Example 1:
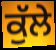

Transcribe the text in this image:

ਕੁੱਲੇ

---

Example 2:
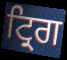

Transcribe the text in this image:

ਟ੍ਰਿਗ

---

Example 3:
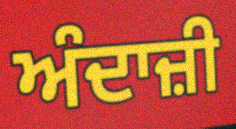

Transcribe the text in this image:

ਅੰਦਾਜ਼ੀ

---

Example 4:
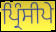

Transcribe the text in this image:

ਪ੍ਰਿੰਸੀਪੇ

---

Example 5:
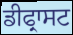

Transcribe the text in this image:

ਡੀਫ੍ਰਾਸਟ